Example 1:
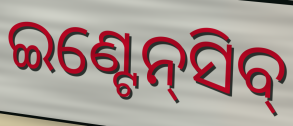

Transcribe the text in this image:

ଇଣ୍ଟେନ୍‍ସିବ୍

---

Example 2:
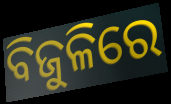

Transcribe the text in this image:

ବିଜୁଳିରେ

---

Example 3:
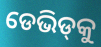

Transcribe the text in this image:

ଡେଭିଡ୍‍କୁ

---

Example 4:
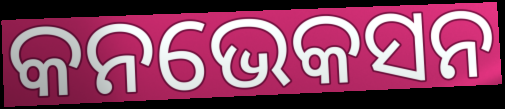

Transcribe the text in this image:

କନଭେକସନ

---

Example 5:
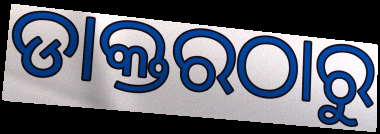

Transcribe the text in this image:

ଡାକ୍ତରଠାରୁ